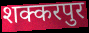
शक्करपुर